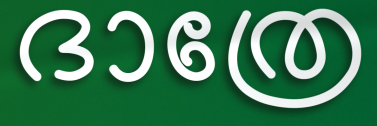
ദാത്രേ